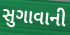
સુગાવાની